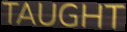
TAUGHT